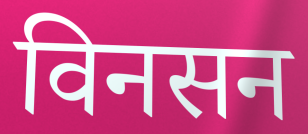
विनसन